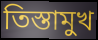
তিস্তামুখ